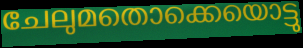
ചേലുമതൊക്കെയൊട്ടു